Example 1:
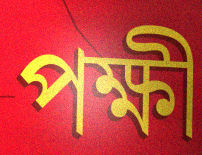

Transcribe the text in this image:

পক্ষী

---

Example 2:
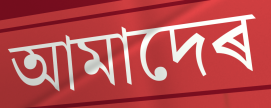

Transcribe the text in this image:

আমাদেৰ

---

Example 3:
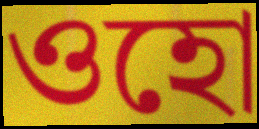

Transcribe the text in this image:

ওহো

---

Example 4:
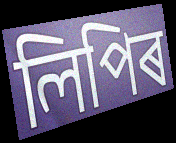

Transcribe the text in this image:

লিপিৰ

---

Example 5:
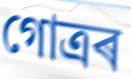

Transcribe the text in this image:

গোত্ৰৰ